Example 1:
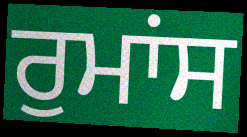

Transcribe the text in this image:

ਰੁਮਾਂਸ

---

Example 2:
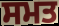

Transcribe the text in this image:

ਸਮਤ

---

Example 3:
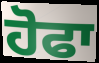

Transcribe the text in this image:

ਹੋਫਾ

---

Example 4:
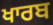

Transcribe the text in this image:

ਖਾਰਬ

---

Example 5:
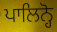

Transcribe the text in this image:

ਪਾਲਿਨ੍ਹੋ